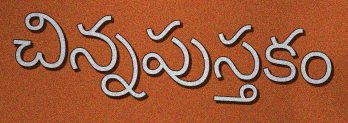
చిన్నపుస్తకం